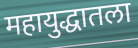
महायुद्धातला